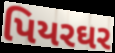
પિયરઘર